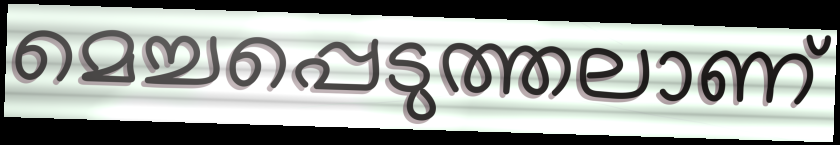
മെച്ചപ്പെടുത്തലാണ്